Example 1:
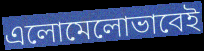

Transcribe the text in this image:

এলোমেলোভাবেই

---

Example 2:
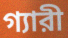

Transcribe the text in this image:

গ্যারী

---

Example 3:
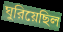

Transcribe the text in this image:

ঘুরিয়েছিল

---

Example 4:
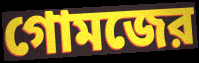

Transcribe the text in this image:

গোমজের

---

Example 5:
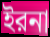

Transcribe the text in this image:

ইরনা